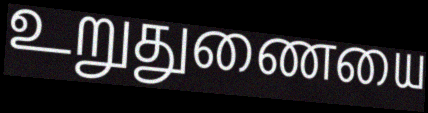
உறுதுணையை